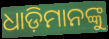
ଧାଡ଼ିମାନଙ୍କୁ